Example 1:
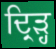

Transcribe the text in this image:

ਦ੍ਰਿੜ੍ਹ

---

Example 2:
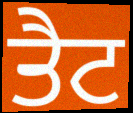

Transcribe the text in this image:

ਤੈਟ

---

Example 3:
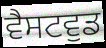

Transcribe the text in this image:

ਵੈਸਟਵੁਡ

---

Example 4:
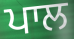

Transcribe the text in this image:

ਪਾਲ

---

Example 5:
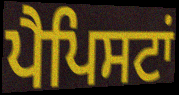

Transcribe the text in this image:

ਪੈਪਿਸਟਾਂ